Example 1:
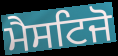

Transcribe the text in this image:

ਮੈਸਟਿਜੋ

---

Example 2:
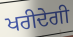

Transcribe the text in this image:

ਖਰੀਦੇਗੀ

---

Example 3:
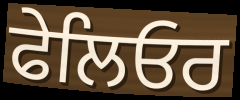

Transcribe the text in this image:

ਫੇਲਿਓਰ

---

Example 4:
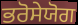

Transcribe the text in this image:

ਭਰੋਸੇਯੋਗ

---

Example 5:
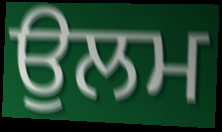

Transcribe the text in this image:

ਉਲਮ